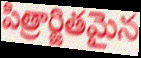
పిత్రార్జితమైన